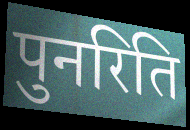
पुनरिति